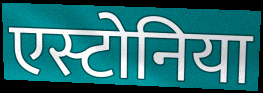
एस्‍टोनिया